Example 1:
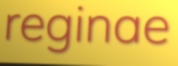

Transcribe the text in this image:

reginae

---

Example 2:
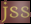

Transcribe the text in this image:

jss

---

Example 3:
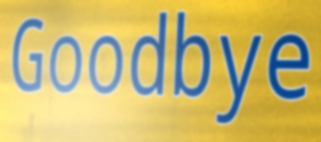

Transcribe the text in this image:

Goodbye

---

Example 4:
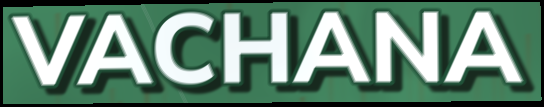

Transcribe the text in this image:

VACHANA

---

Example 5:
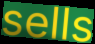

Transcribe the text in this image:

sells